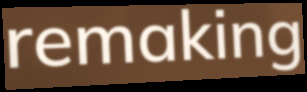
remaking